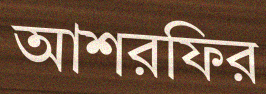
আশরফির